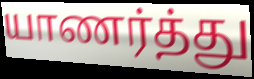
யாணர்த்து